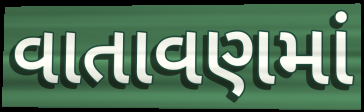
વાતાવણમાં